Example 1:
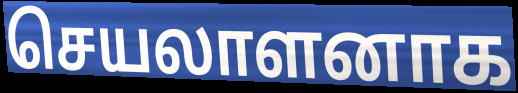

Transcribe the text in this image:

செயலாளனாக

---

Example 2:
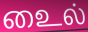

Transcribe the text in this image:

உைல்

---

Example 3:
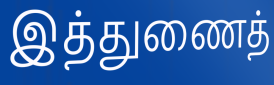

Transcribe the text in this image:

இத்துணைத்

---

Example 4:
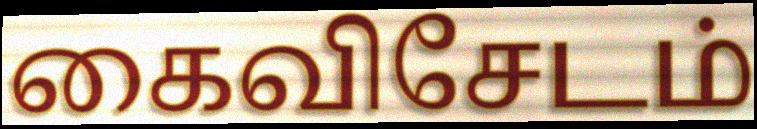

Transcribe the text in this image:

கைவிசேடம்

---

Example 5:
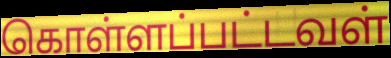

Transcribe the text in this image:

கொள்ளப்பட்டவள்